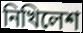
নিখিলেশ